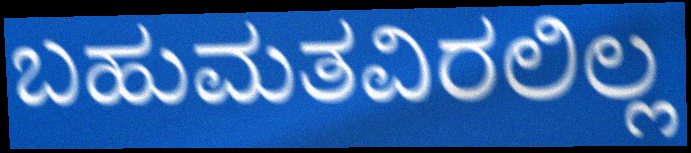
ಬಹುಮತವಿರಲಿಲ್ಲ